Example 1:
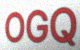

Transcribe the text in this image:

OGQ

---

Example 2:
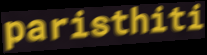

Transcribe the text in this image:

paristhiti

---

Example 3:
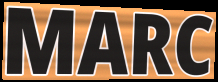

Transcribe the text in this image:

MARC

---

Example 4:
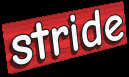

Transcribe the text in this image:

stride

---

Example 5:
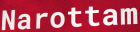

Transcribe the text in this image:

Narottam